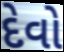
દેવો